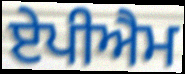
ਏਪੀਐਮ